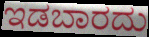
ಇಡಬಾರದು